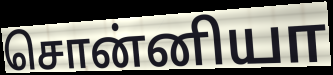
சொன்னியா